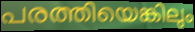
പരത്തിയെങ്കിലും